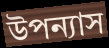
উপন্যাস